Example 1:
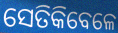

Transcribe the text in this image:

ସେତିକିବେଳେ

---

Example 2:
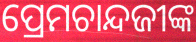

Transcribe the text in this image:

ପ୍ରେମଚାନ୍ଦଜୀଙ୍କ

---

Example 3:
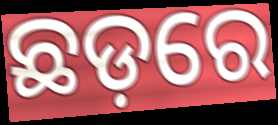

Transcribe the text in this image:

ଛଡ଼ରେ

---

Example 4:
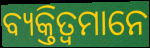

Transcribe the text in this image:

ବ୍ୟକ୍ତିତ୍ୱମାନେ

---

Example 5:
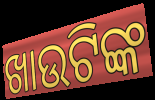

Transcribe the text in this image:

ଖାଉଟିଙ୍କ